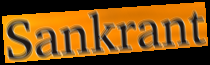
Sankrant